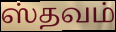
ஸ்தவம்